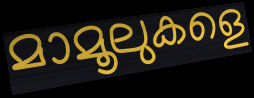
മാമൂലുകളെ